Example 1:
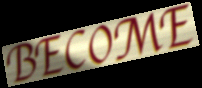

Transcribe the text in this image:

BECOME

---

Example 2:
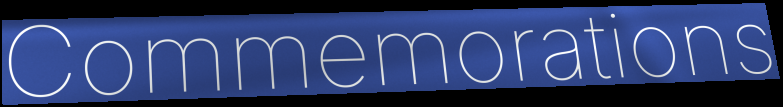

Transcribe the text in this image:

Commemorations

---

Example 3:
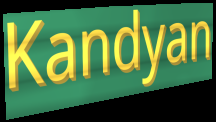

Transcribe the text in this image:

Kandyan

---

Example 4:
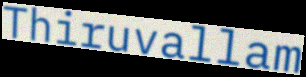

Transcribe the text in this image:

Thiruvallam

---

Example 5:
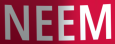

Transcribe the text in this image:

NEEM